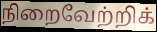
நிறைவேற்றிக்